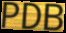
PDB